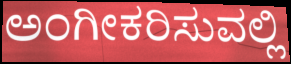
ಅಂಗೀಕರಿಸುವಲ್ಲಿ